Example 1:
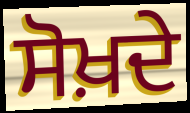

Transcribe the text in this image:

ਸੋਖ਼ਦੇ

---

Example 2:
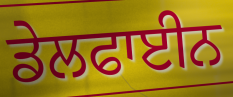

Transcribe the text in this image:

ਡੇਲਫਾਈਨ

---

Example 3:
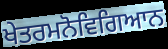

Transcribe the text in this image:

ਖੇਤਰਮਨੋਵਿਗਿਆਨ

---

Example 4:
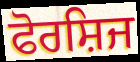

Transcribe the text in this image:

ਫੋਰਸ਼ਿਜ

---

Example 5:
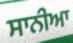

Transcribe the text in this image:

ਸਾਨੀਆ